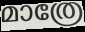
മാത്രേ